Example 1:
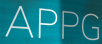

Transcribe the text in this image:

APPG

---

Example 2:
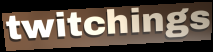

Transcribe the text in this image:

twitchings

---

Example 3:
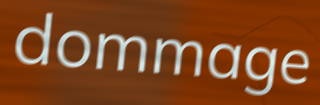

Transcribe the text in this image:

dommage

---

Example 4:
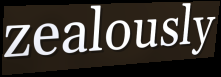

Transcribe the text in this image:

zealously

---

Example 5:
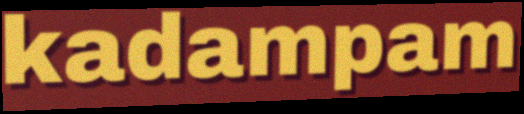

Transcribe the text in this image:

kadampam